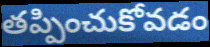
తప్పించుకోవడం